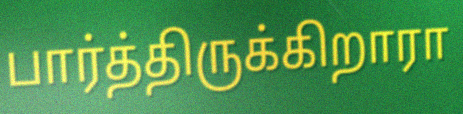
பார்த்திருக்கிறாரா